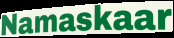
Namaskaar